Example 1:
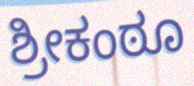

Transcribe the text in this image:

ಶ್ರೀಕಂಠೂ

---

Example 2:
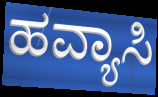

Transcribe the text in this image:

ಹವ್ಯಾಸಿ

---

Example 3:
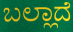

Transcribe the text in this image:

ಬಲ್ಲಾದೆ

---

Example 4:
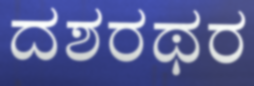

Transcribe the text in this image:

ದಶರಥರ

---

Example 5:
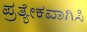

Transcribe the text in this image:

ಪ್ರತ್ಯೇಕವಾಗಿಸಿ